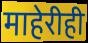
माहेरीही